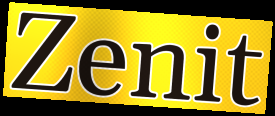
Zenit